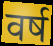
वर्ष